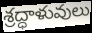
శ్రద్ధాళువులు